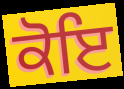
ਕੋਇ